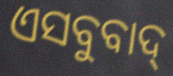
ଏସବୁବାଦ୍